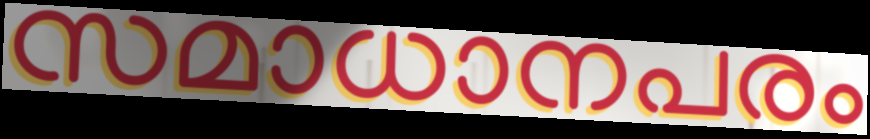
സമാധാനപരം